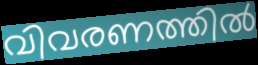
വിവരണത്തിൽ